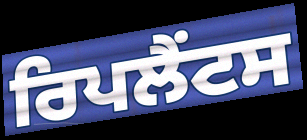
ਰਿਪਲੈਂਟਸ